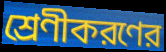
শ্রেণীকরণের